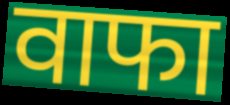
वाफा